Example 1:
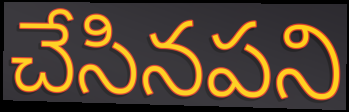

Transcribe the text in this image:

చేసినపని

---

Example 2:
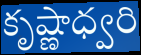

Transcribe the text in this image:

కృష్ణాధ్వరి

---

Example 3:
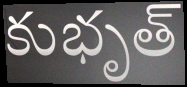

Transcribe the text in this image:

కుభృత్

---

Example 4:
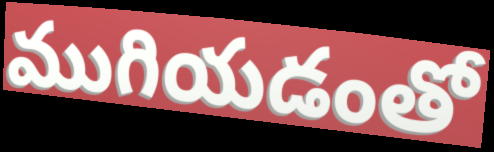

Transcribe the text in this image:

ముగియడంతో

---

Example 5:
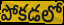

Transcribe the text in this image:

పోకడలో